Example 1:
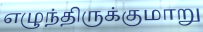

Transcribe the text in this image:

எழுந்திருக்குமாறு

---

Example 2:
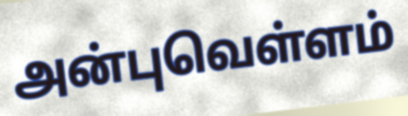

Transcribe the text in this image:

அன்புவெள்ளம்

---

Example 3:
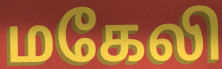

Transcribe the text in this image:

மகேலி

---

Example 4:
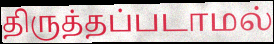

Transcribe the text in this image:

திருத்தப்படாமல்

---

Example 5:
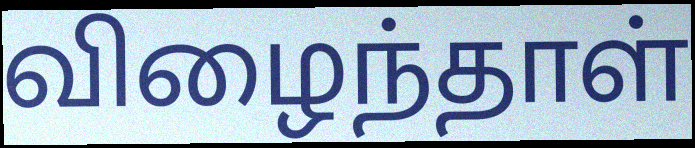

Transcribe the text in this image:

விழைந்தாள்